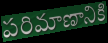
పరిమాణానికి